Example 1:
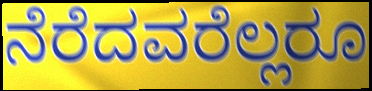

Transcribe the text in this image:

ನೆರೆದವರೆಲ್ಲರೂ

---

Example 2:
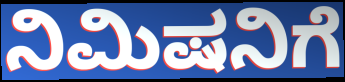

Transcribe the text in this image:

ನಿಮಿಷನಿಗೆ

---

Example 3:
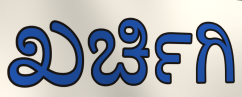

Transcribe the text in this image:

ಖರ್ಚಿಗಿ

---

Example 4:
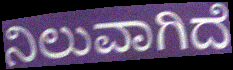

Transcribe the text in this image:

ನಿಲುವಾಗಿದೆ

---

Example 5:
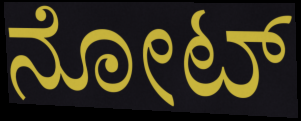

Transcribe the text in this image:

ನೋಟ್